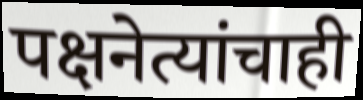
पक्षनेत्यांचाही